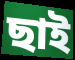
ছাই